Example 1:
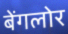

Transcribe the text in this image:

बेंगलोर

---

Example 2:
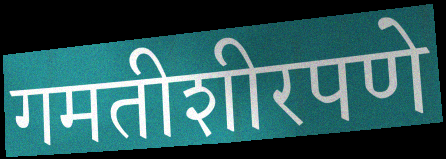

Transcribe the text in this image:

गमतीशीरपणे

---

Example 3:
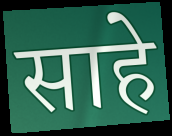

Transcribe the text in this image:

साहे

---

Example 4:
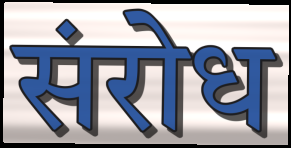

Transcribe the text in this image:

संरोध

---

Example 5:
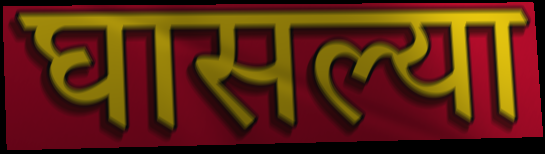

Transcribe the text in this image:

घासल्या